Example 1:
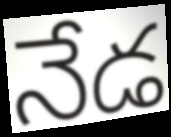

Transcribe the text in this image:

నేడ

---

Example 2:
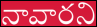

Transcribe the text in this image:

నావారని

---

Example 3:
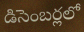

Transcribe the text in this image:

డిసెంబర్లలో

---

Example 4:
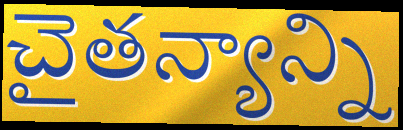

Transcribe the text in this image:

చైతన్యాన్ని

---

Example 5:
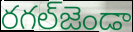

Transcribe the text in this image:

రగల్‌జెండా